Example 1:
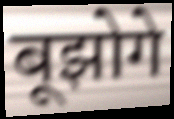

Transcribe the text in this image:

बूझोगे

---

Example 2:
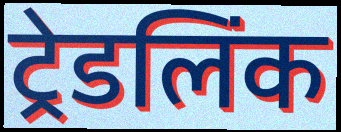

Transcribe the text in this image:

ट्रेडलिंक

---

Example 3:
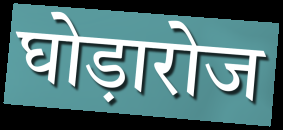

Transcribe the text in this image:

घोड़ारोज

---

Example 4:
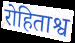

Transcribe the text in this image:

रोहिताश्व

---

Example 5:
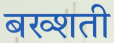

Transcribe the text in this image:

बख्शती